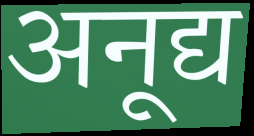
अनूद्य